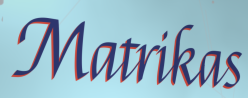
Matrikas